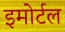
इमोर्टल